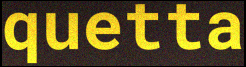
quetta